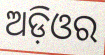
ଅଡ଼ିଓର